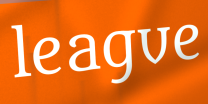
league